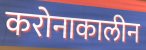
करोनाकालीन